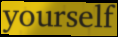
yourself